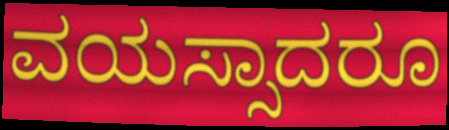
ವಯಸ್ಸಾದರೂ